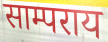
साम्पराय